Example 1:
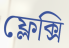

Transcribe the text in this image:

ফ্লেক্সি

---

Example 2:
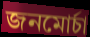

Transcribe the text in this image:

জনমোর্চা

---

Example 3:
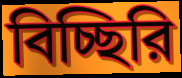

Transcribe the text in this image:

বিচ্ছিরি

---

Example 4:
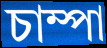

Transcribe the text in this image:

চাম্পা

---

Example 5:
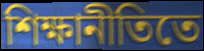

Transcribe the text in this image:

শিক্ষানীতিতে